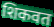
शिकवत